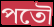
পতৌ